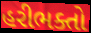
હરીભક્તો